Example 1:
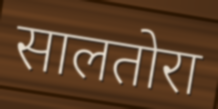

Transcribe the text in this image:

सालतोरा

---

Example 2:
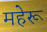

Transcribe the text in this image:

महेरू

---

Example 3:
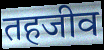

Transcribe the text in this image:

तहजीव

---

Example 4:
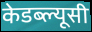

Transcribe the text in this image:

केडब्ल्यूसी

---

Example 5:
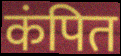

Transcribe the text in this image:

कंपित